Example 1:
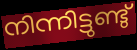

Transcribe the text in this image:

നിന്നിട്ടുണ്ടു്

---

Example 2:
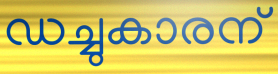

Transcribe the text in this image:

ഡച്ചുകാരന്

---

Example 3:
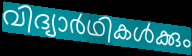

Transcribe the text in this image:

വിദ്യാർഥികൾക്കും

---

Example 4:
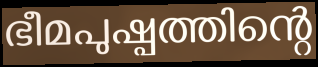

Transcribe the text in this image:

ഭീമപുഷ്പത്തിന്റെ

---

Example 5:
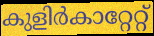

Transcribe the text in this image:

കുളിർകാറ്റേറ്റ്